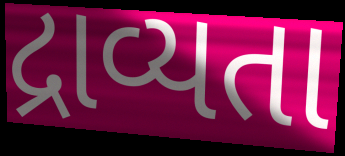
દ્રાવ્યતા